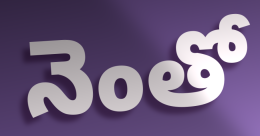
నెంతో